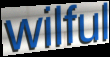
wilful